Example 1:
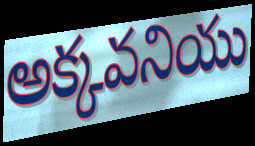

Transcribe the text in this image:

అక్కవనియు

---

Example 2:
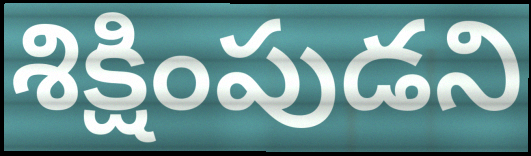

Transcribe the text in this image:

శిక్షింపుడని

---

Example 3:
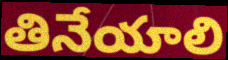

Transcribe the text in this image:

తినేయాలి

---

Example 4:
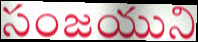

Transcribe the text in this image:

సంజయుని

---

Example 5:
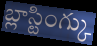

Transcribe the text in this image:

బ్లాస్టింగ్కు